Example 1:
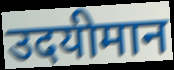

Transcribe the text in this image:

उदयीमान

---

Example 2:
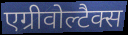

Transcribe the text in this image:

एग्रीवोल्टैक्स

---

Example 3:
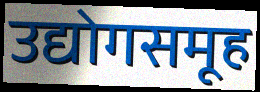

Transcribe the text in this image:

उद्योगसमूह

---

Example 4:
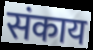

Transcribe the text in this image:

संकाय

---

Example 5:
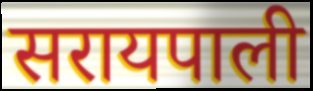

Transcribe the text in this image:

सरायपाली